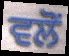
ਵਲੋੰ